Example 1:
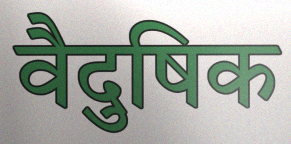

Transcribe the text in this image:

वैदुषिक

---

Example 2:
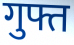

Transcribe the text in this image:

गुफ्त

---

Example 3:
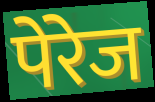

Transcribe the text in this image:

पेरेज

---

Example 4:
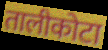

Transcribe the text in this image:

तालीकोटा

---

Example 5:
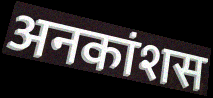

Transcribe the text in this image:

अनकांशस